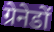
ग्रेनेडों